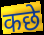
कछे